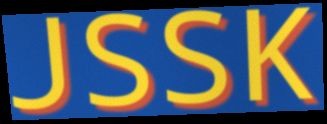
JSSK